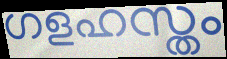
ഗളഹസ്തം